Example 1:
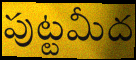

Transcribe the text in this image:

పుట్టమీద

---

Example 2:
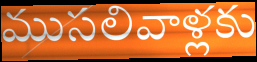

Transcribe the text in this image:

ముసలివాళ్లకు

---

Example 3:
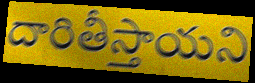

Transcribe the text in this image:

దారితీస్తాయని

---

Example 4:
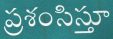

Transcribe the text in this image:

ప్రశంసిస్తూ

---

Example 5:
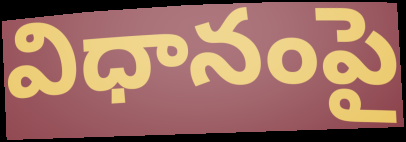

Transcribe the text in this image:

విధానంపై